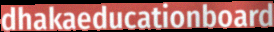
dhakaeducationboard